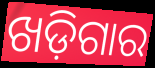
ଖଡ଼ିଗାର